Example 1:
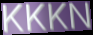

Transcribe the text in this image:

KKKN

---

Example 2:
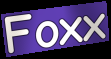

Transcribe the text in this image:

Foxx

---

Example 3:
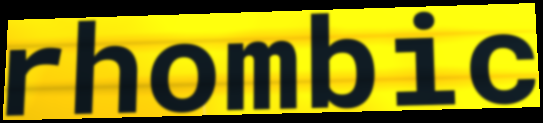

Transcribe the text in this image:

rhombic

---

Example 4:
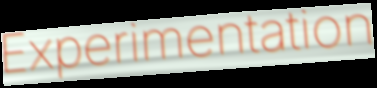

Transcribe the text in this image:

Experimentation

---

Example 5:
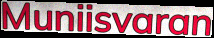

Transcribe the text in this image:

Muniisvaran